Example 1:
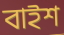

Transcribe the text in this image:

বাইশ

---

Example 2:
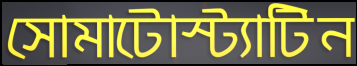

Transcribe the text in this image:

সোমাটোস্ট্যাটিন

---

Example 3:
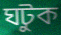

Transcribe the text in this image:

ঘটুক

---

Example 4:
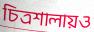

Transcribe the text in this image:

চিত্রশালায়ও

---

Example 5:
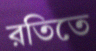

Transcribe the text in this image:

রতিতে